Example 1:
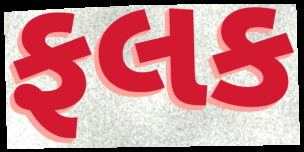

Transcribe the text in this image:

ફલક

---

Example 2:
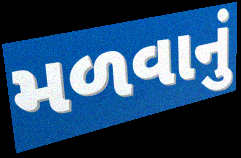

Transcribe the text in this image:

મળવાનું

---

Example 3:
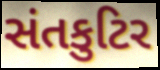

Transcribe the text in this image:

સંતકુટિર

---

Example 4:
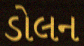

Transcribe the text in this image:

ડોલન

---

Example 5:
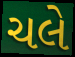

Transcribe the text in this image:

ચલે